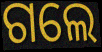
ଗଲେ